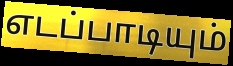
எடப்பாடியும்